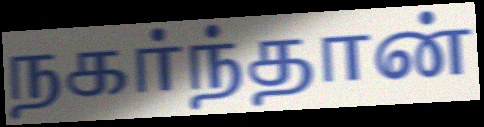
நகர்ந்தான்